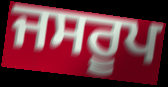
ਜਸਰੂਪ